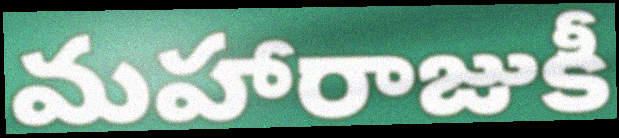
మహారాజుకీ